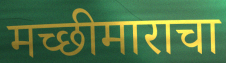
मच्छीमाराचा